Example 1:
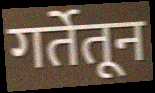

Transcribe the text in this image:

गर्तेतून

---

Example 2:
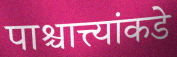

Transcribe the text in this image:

पाश्चात्त्यांकडे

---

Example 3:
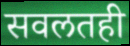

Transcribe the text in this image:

सवलतही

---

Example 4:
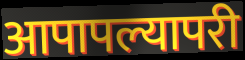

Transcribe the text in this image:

आपापल्यापरी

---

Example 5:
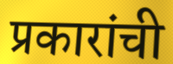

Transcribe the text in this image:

प्रकारांची